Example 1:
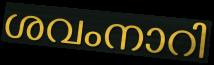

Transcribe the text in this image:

ശവംനാറി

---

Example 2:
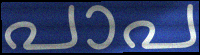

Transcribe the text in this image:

പാപ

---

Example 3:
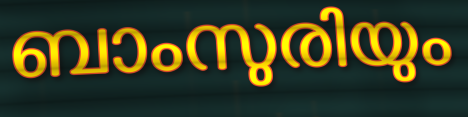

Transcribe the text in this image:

ബാംസുരിയും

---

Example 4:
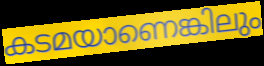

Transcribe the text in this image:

കടമയാണെങ്കിലും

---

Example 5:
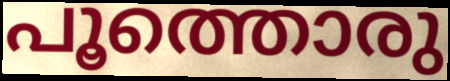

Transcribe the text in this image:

പൂത്തൊരു